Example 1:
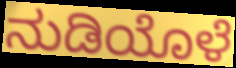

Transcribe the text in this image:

ನುಡಿಯೊಳೆ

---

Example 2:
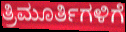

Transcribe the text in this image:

ತ್ರಿಮೂರ್ತಿಗಳಿಗೆ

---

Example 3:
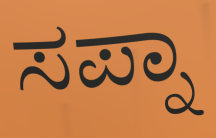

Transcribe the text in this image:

ಸಪ್ನಾ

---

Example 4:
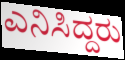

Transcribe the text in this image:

ಎನಿಸಿದ್ದರು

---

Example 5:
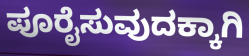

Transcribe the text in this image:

ಪೂರೈಸುವುದಕ್ಕಾಗಿ